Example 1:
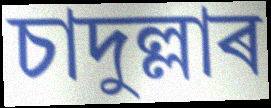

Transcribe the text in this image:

চাদুল্লাৰ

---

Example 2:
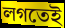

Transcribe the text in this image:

লগতেই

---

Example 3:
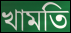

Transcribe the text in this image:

খামতি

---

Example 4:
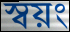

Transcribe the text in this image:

স্বয়ং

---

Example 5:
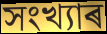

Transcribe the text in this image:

সংখ্যাৰ